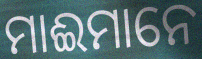
ମାଈମାନେ